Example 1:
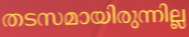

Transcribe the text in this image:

തടസമായിരുന്നില്ല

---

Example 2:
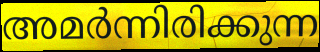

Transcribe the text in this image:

അമർന്നിരിക്കുന്ന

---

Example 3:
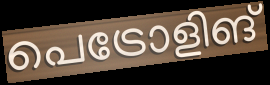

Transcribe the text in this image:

പെട്രോളിങ്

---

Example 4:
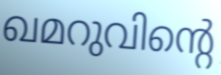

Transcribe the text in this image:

ഖമറുവിന്റെ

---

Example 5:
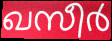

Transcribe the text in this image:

ഖസീർ